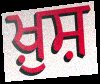
ਖ਼ੁਸ਼